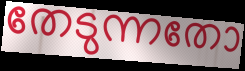
തേടുന്നതോ